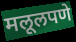
मलूलपणे